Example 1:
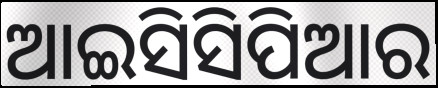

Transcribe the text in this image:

ଆଇସିସିପିଆର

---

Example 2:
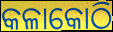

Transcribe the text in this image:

କଳାକୋଠି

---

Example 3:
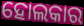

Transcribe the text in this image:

ହୋଲକାର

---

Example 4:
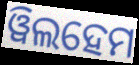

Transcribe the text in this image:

ୱିଲହେମ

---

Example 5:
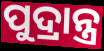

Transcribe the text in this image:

ପୁଦ୍ରାନ୍ତ୍ର